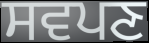
ਸਵਪਣ